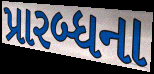
પ્રારબ્ધના